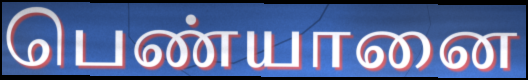
பெண்யானை